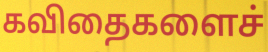
கவிதைகளைச்